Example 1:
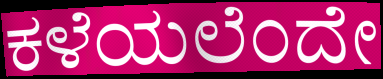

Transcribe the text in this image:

ಕಳೆಯಲೆಂದೇ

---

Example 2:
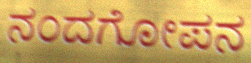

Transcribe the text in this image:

ನಂದಗೋಪನ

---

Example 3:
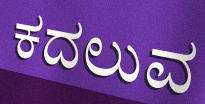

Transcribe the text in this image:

ಕದಲುವ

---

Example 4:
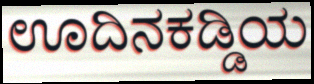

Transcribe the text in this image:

ಊದಿನಕಡ್ಡಿಯ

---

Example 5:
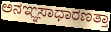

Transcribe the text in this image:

ಅನಞ್ಞಸಾಧಾರಣತ್ತಾ